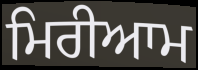
ਮਿਰੀਆਮ